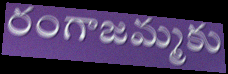
రంగాజమ్మకు